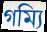
গম্যি